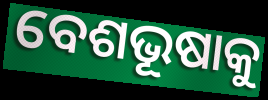
ବେଶଭୂଷାକୁ